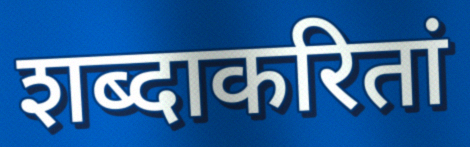
शब्दाकरितां